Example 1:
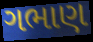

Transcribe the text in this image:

ગભાણ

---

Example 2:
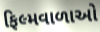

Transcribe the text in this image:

ફિલ્મવાળાઓ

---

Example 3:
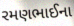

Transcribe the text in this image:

રમણભાઈના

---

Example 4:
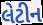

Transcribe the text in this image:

લેટીન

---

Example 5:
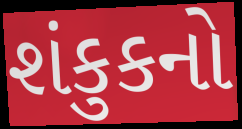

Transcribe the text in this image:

શંકુકનો